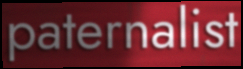
paternalist